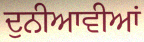
ਦੁਨੀਆਵੀਆਂ